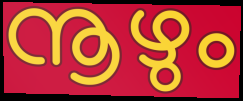
നൂഴും